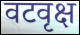
वटवृक्ष